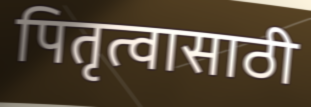
पितृत्वासाठी